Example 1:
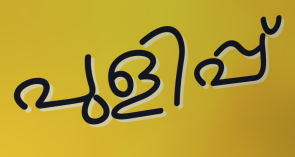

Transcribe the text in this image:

പുളിപ്പ്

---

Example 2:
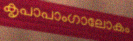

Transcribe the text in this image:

കൃപാപാംഗാലോകം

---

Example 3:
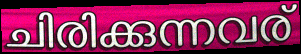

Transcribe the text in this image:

ചിരിക്കുന്നവര്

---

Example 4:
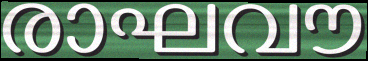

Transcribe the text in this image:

രാഘവൗ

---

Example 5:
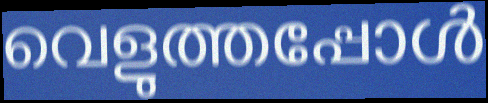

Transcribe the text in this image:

വെളുത്തപ്പോൾ